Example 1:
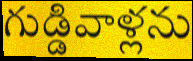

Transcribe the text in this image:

గుడ్డివాళ్లను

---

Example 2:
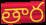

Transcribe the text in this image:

తార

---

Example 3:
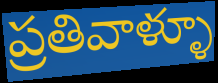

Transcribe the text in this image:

ప్రతివాళ్ళూ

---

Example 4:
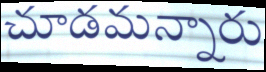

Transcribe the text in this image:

చూడమన్నారు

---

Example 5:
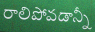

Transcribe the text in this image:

రాలిపోవడాన్నీ